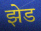
झेड